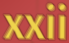
xxii